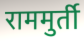
राममुर्ती